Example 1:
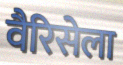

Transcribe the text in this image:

वैरिसेला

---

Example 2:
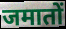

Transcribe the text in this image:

जमातों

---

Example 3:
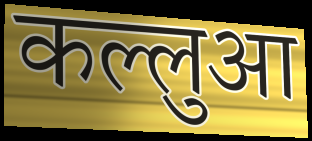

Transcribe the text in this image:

कल्लुआ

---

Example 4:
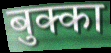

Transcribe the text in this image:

बुक्का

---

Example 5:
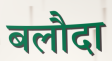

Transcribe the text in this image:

बलौदा